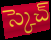
స్కెచ్